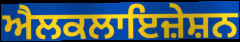
ਐਲਕਲਾਇਜ਼ੇਸ਼ਨ